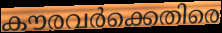
കൗരവർക്കെതിരെ